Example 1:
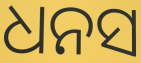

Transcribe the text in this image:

ଧନସ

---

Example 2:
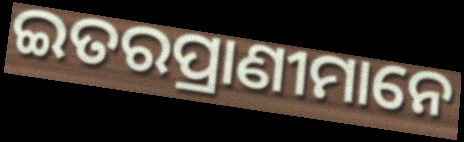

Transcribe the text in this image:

ଇତରପ୍ରାଣୀମାନେ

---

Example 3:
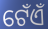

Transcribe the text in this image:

ଟେଁଏଁ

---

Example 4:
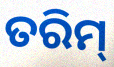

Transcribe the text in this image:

ତରିମ୍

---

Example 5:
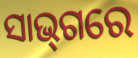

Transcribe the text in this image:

ସାଭ୍‌ଗରେ